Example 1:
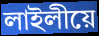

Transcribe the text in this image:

লাইলীয়ে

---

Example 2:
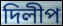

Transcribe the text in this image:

দিলীপ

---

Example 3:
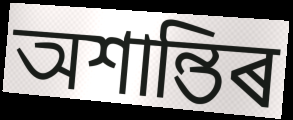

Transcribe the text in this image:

অশান্তিৰ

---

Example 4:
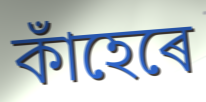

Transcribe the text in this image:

কাঁহেৰে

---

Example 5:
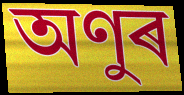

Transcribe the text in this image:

অণুৰ